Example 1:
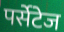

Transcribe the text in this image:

पर्सेटेज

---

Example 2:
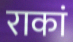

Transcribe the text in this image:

राकां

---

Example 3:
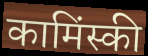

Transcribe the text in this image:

कामिंस्की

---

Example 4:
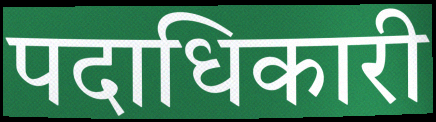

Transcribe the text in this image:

पदाधिकारी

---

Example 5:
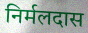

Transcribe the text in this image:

निर्मलदास